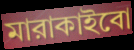
মারাকাইবো